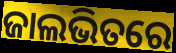
ଜାଲଭିତରେ